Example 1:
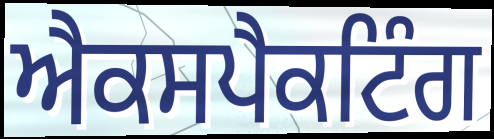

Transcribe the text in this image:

ਐਕਸਪੈਕਟਿੰਗ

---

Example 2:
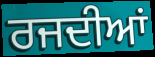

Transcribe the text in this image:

ਰਜਦੀਆਂ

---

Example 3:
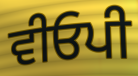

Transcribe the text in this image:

ਵੀਓਪੀ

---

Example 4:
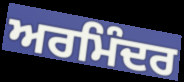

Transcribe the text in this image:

ਅਰਮਿੰਦਰ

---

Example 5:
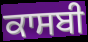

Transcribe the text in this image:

ਕਾਸਬੀ